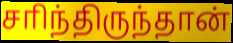
சரிந்திருந்தான்